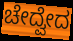
ಚೇದ್ವೇದ